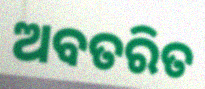
ଅବତରିତ